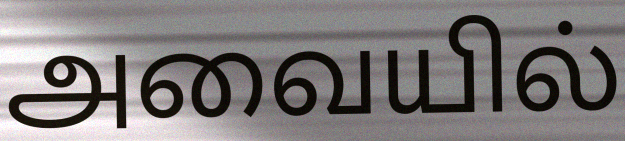
அவையில்